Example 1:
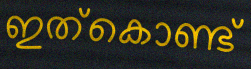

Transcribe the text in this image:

ഇത്കൊണ്ട്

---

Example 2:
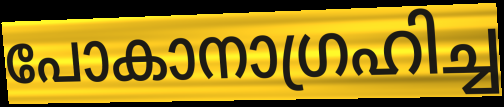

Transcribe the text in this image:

പോകാനാഗ്രഹിച്ച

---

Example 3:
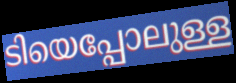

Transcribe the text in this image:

ടിയെപ്പോലുള്ള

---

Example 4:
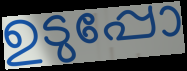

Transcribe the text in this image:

ഉടുപ്പോ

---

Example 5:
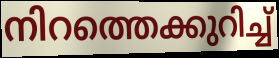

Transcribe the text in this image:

നിറത്തെക്കുറിച്ച്